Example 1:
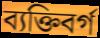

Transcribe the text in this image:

ব্যক্তিবর্গ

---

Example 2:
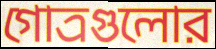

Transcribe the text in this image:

গোত্রগুলোর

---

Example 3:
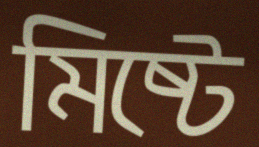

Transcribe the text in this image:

মিষ্টে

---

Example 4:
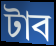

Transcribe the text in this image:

টাব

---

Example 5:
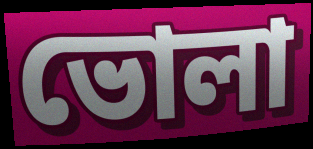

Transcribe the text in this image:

ভোলা